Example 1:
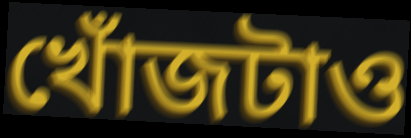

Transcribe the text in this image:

খোঁজটাও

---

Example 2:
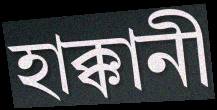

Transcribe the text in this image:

হাক্কানী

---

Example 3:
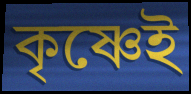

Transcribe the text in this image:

কৃষ্ণেই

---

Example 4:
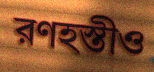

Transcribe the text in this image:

রণহস্তীও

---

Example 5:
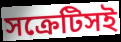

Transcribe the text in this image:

সক্রেটিসই